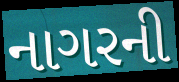
નાગરની